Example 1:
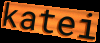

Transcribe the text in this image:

katei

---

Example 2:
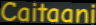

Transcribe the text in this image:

Caitaani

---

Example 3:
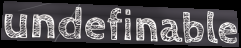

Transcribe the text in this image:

undefinable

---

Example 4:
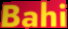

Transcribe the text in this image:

Bahi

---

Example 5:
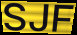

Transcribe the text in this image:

SJF